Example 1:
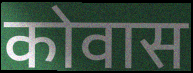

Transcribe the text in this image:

कोवास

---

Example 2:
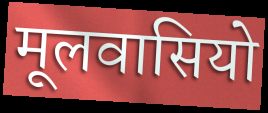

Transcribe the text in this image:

मूलवासियो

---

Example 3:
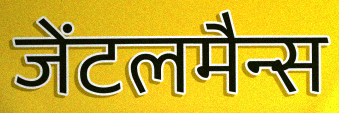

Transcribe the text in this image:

जेंटलमैन्स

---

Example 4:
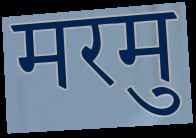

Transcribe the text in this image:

मरमु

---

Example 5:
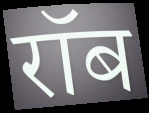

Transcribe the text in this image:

रॉब